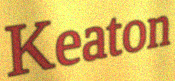
Keaton